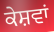
ਕੇਸ਼ਵਾਂ